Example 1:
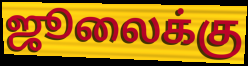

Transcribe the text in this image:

ஜூலைக்கு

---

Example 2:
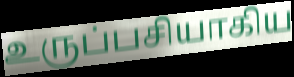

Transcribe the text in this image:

உருப்பசியாகிய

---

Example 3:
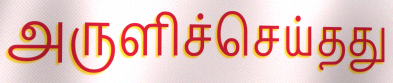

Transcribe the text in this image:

அருளிச்செய்தது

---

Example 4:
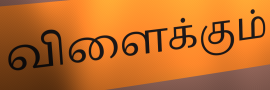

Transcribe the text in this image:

விளைக்கும்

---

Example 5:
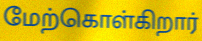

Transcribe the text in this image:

மேற்கொள்கிறார்